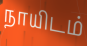
நாயிடம்